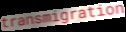
transmigration